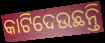
କାଟିଦେଉଛନ୍ତି